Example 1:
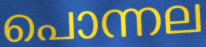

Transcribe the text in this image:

പൊന്നല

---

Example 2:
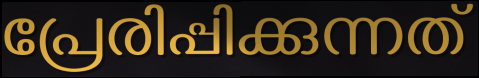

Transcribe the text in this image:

പ്രേരിപ്പിക്കുന്നത്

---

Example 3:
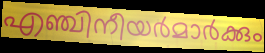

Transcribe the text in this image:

എഞ്ചിനീയർമാർക്കും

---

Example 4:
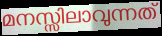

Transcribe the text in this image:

മനസ്സിലാവുന്നത്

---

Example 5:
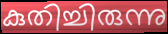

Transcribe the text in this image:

കുതിച്ചിരുന്നു